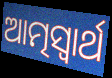
ଆତ୍ମସ୍ଵାର୍ଥ